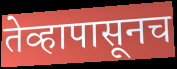
तेव्हापासूनच